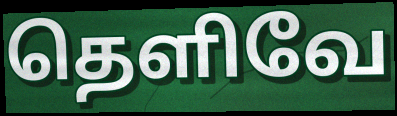
தெளிவே